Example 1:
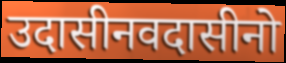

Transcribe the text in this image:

उदासीनवदासीनो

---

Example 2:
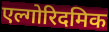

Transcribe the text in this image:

एल्गोरिदमिक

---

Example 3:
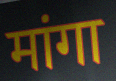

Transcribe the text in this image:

मांगा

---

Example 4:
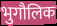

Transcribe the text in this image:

भुगौलिक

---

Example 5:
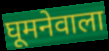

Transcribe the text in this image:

घूमनेवाला